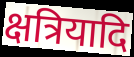
क्षत्रियादि